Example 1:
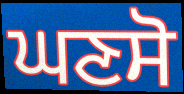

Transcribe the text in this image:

ਘਣਸੋ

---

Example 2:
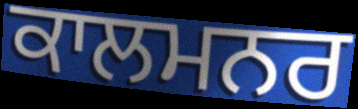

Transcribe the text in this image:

ਕਾਲਮਨਰ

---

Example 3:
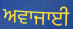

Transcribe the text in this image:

ਅਵਾਜਾਈ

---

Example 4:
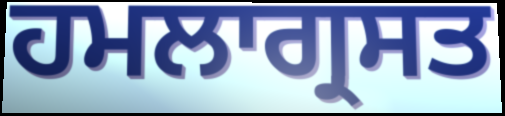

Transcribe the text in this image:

ਹਮਲਾਗ੍ਰਸਤ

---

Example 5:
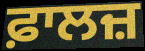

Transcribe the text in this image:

ਫ਼ਾਲਜ਼